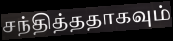
சந்தித்ததாகவும்